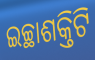
ଇଚ୍ଛାଶକ୍ତିଟି